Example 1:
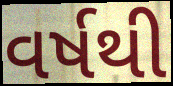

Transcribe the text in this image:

વર્ષથી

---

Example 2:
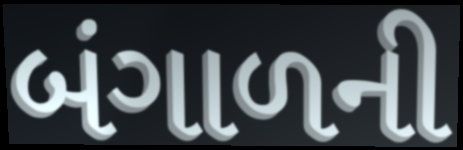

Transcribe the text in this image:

બંગાળની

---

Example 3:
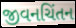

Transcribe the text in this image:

જીવનચિંતન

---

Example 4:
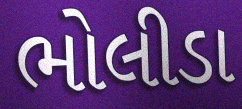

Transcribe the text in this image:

ભોલીડા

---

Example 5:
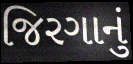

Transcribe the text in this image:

જિરગાનું